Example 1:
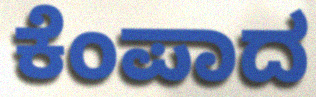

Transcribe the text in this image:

ಕೆಂಪಾದ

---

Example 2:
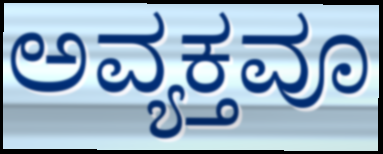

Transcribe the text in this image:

ಅವ್ಯಕ್ತವೂ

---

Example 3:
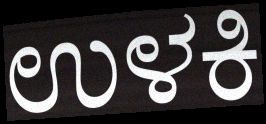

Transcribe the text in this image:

ಉಳಕಿ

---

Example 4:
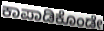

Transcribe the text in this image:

ಕಾಪಾಡಿಕೊಂಡೇ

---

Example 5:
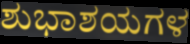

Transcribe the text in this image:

ಶುಭಾಶಯಗಳ